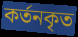
কর্তনকৃত